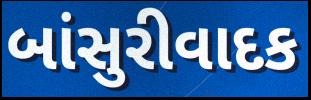
બાંસુરીવાદક